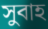
সুবাহ